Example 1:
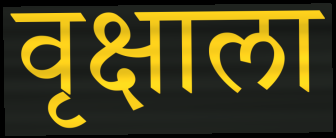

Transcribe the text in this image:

वृक्षाला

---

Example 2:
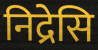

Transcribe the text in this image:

निद्रेसि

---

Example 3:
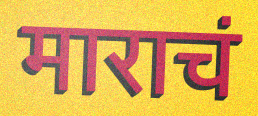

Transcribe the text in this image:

माराचं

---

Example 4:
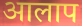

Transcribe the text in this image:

आलाप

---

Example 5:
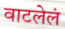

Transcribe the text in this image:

वाटलेलं